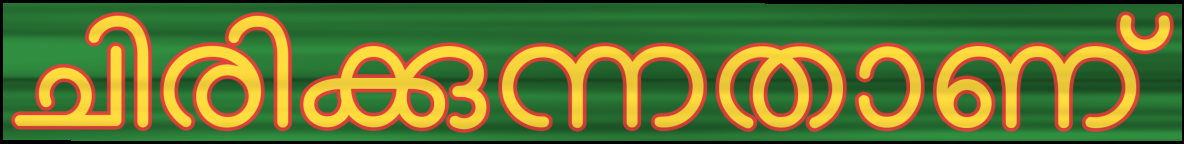
ചിരിക്കുന്നതാണ്